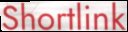
Shortlink